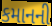
કમાનની